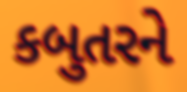
કબુતરને